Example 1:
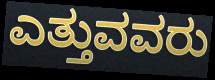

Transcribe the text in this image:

ಎತ್ತುವವರು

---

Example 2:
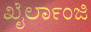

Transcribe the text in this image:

ಖೈರ್ಲಾಂಜಿ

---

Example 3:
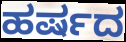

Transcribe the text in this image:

ಹರ್ಷದ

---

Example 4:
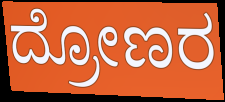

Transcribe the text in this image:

ದ್ರೋಣರ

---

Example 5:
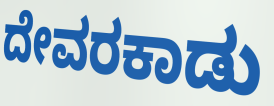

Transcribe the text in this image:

ದೇವರಕಾಡು